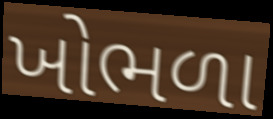
ખોભળા